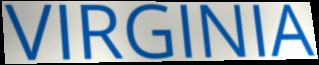
VIRGINIA